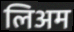
लिअम